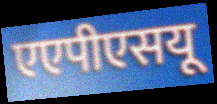
एएपीएसयू